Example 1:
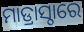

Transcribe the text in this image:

ମାଡ୍ରାସ୍ଠାରେ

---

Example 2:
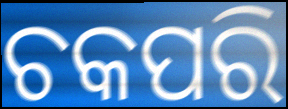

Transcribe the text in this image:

ଚକପରି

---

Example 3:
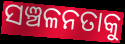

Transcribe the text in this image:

ସଞ୍ଚଳନତାକୁ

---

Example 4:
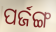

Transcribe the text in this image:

ପର୍ଜଙ୍ଗ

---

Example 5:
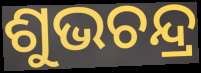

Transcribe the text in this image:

ଶୁଭଚନ୍ଦ୍ର